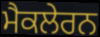
ਮੈਕਲੇਰਨ